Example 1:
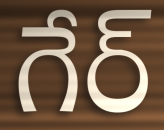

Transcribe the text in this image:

గేర్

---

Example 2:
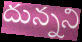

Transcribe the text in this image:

దున్నని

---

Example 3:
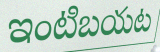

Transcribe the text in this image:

ఇంటిబయట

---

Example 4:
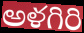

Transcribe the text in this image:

అళగిరి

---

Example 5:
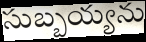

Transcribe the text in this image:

సుబ్బయ్యను